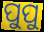
ପୁପୁ